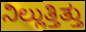
ನಿಲ್ಲುತ್ತಿತ್ತು